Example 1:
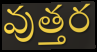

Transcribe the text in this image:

వుత్తర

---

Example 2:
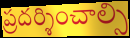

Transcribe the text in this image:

ప్రదర్శించాల్సి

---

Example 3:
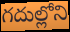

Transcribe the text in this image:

గదుల్లోని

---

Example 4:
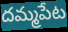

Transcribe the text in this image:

దమ్మపేట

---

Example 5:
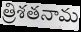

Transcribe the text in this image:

త్రిశతనామ